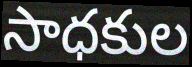
సాధకుల